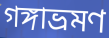
গঙ্গাভ্রমণ